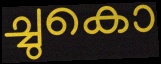
ച്ചുകൊ